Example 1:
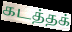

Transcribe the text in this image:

கடத்தக்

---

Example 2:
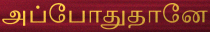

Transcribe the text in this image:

அப்போதுதானே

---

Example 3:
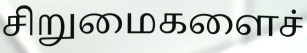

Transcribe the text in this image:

சிறுமைகளைச்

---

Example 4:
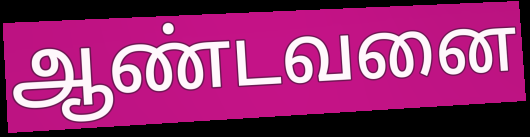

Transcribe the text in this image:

ஆண்டவனை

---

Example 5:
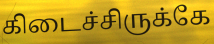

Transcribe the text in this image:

கிடைச்சிருக்கே